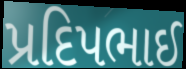
પ્રદિપભાઈ